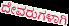
ದೇವರುಗಳಾಗಿ